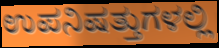
ಉಪನಿಷತ್ತುಗಳಲ್ಲಿ